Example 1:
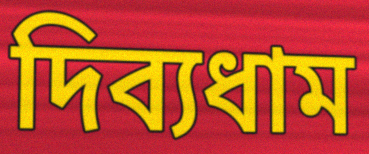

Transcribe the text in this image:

দিব্যধাম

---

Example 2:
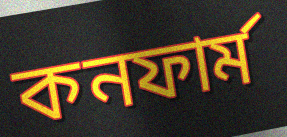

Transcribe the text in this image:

কনফার্ম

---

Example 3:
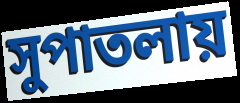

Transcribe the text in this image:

সুপাতলায়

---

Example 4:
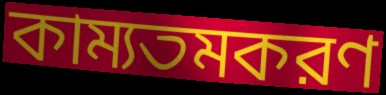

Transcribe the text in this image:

কাম্যতমকরণ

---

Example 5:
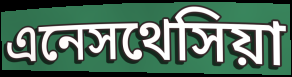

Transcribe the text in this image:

এনেসথেসিয়া